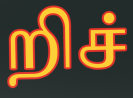
றிச்